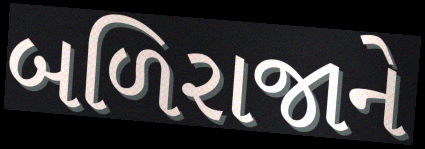
બળિરાજાને